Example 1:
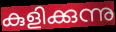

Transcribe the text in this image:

കുളിക്കുന്നു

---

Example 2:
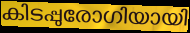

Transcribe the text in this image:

കിടപ്പുരോഗിയായി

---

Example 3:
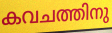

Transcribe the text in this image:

കവചത്തിനു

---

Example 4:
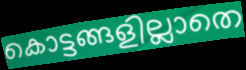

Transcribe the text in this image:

കൊട്ടങ്ങളില്ലാതെ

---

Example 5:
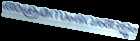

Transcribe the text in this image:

അക്രമസംഭവങ്ങളും